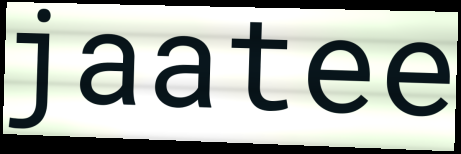
jaatee